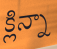
క్లిన్నా